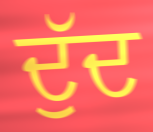
ਦੁੱਦ